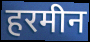
हरमीन